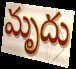
మృదు